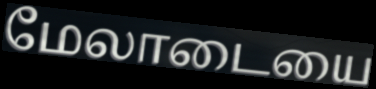
மேலாடையை